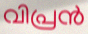
വിപ്രൻ